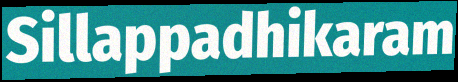
Sillappadhikaram